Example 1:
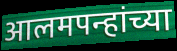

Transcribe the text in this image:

आलमपन्हांच्या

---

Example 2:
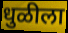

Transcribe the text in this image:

धुळीला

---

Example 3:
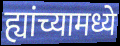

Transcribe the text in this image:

ह्यांच्यामध्ये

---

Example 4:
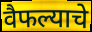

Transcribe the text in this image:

वैफल्याचे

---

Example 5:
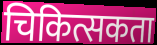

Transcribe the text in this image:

चिकित्सकता